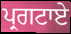
ਪ੍ਰਗਟਾਏ